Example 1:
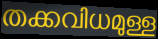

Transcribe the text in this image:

തക്കവിധമുള്ള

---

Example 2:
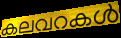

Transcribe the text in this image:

കലവറകൾ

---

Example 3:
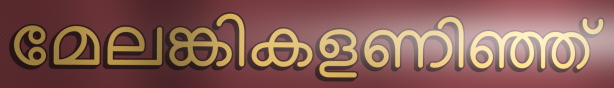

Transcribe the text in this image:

മേലങ്കികളണിഞ്ഞ്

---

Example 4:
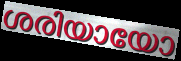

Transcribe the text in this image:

ശരിയായോ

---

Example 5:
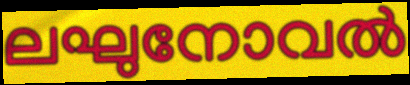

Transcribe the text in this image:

ലഘുനോവൽ